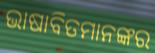
ଭାଷାବିତମାନଙ୍କର